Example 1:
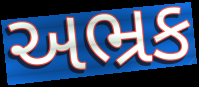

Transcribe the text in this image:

અભ્રક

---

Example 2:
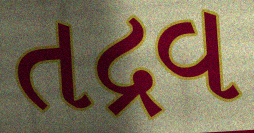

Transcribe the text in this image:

તદ્રવ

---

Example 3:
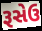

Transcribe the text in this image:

રૂસેઉ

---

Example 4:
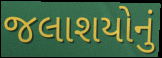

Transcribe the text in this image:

જલાશયોનું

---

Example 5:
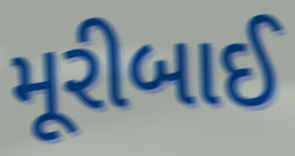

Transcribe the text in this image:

મૂરીબાઈ